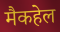
मैकहेल